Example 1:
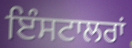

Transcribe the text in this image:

ਇੰਸਟਾਲਰਾਂ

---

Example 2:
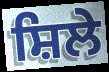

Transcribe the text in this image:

ਸ਼ਿਲੇ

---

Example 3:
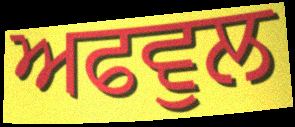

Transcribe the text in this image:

ਅਫਵੁਲ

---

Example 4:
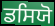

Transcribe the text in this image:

ਡਸਿਯੋ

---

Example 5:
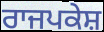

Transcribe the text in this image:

ਰਾਜਪਕੇਸ਼